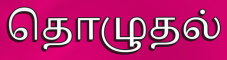
தொழுதல்